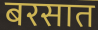
बरसात